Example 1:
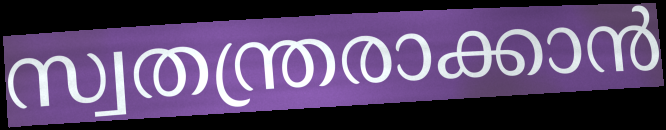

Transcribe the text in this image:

സ്വതന്ത്രരാക്കാൻ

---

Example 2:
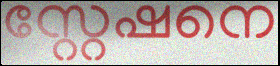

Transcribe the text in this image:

സ്റ്റേഷനെ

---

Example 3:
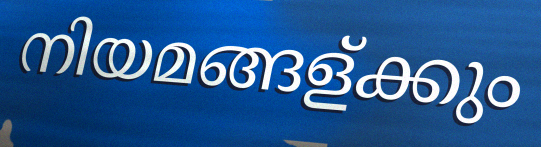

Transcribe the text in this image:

നിയമങ്ങള്ക്കും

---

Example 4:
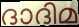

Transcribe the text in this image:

ദാദിമ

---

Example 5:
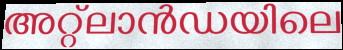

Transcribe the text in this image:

അറ്റ്ലാൻഡയിലെ